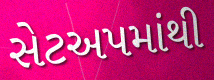
સેટઅપમાંથી